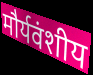
मौर्यवंशीय